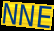
NNE